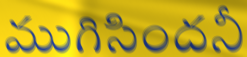
ముగిసిందనీ